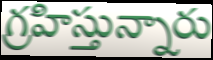
గ్రహిస్తున్నారు